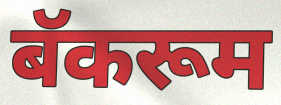
बॅकरूम